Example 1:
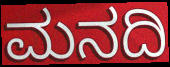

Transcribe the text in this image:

ಮನದಿ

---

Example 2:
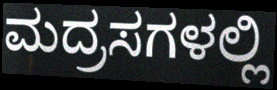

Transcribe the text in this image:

ಮದ್ರಸಗಳಲ್ಲಿ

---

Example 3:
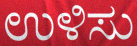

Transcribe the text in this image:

ಉಳಿಸು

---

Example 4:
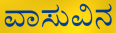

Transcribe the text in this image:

ವಾಸುವಿನ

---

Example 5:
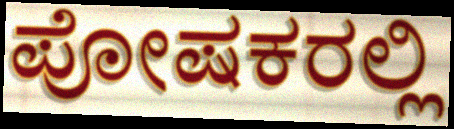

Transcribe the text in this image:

ಪೋಷಕರಲ್ಲಿ